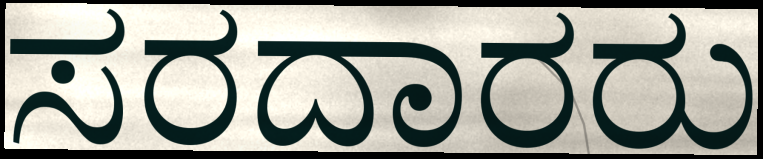
ಸರದಾರರು